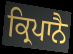
ਕ੍ਰਿਪਾਨੈ